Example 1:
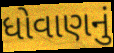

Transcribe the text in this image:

ધોવાણનું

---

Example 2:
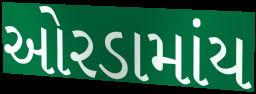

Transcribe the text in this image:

ઓરડામાંય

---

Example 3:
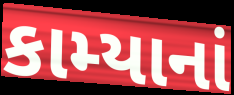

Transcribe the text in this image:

કામ્યાનાં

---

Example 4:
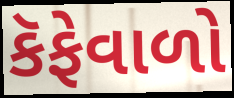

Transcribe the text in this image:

કૅફેવાળો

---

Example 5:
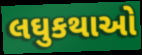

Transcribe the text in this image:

લઘુકથાઓ